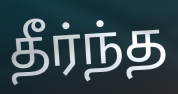
தீர்ந்த